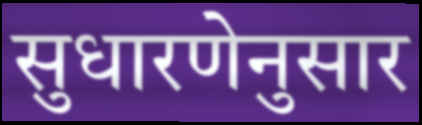
सुधारणेनुसार